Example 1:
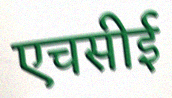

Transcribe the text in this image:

एचसीई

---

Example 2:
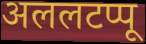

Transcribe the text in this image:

अललटप्पू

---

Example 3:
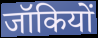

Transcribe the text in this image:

जॉकियों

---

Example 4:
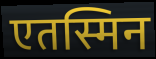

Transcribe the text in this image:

एतस्मिन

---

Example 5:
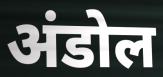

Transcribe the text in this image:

अंडोल